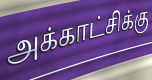
அக்காட்சிக்கு